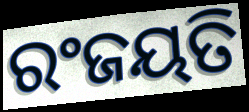
ରଂଜୟତି